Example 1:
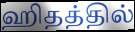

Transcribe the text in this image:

ஹிதத்தில்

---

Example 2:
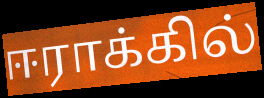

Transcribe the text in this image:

ஈராக்கில்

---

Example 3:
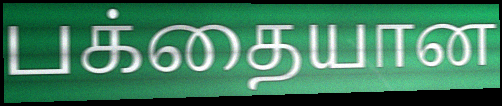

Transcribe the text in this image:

பக்தையான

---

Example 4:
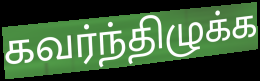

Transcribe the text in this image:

கவர்ந்திழுக்க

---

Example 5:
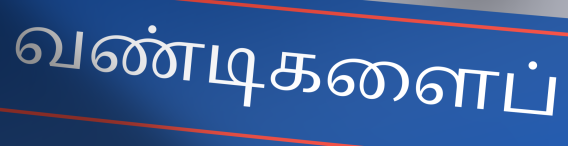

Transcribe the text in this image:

வண்டிகளைப்